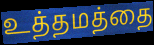
உத்தமத்தை